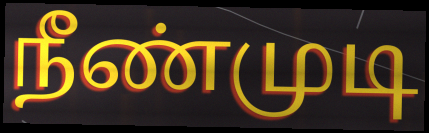
நீண்முடி